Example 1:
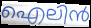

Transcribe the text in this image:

ഐലിൻ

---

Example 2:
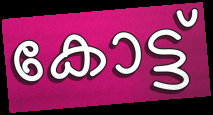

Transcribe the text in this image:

കോട്ട്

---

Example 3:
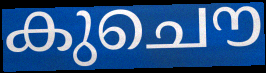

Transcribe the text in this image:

കുചൌ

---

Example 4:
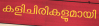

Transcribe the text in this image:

കളിചിരികളുമായി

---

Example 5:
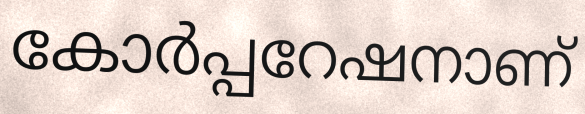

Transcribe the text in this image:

കോർപ്പറേഷനാണ്